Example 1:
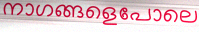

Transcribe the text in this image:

നാഗങ്ങളെപോലെ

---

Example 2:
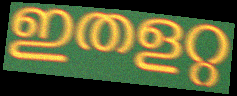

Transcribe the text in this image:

ഇതളറ്റ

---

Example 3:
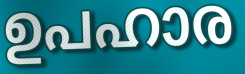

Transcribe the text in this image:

ഉപഹാര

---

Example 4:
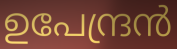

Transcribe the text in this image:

ഉപേന്ദ്രൻ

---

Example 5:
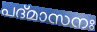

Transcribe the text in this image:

പദ്മാസനഃ